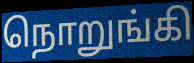
நொறுங்கி